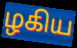
ழகிய